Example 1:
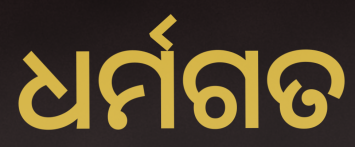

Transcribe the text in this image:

ଧର୍ମଗତ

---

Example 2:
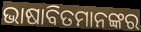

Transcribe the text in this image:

ଭାଷାବିତମାନଙ୍କର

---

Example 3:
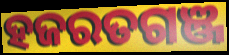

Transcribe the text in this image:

ହଜରତଗଞ୍ଜ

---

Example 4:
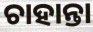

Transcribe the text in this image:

ଚାହାନ୍ତା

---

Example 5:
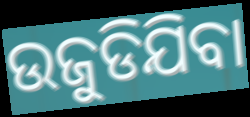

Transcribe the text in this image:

ଉଜୁଡିଯିବା